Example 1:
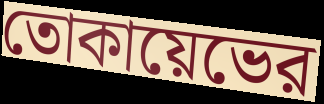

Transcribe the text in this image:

তোকায়েভের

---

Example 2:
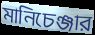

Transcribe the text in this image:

মানিচেঞ্জার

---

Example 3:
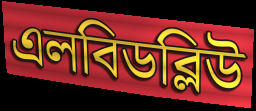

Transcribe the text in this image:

এলবিডব্লিউ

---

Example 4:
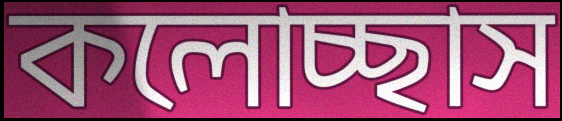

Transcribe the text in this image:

কলোচ্ছাস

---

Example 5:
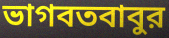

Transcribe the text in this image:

ভাগবতবাবুর